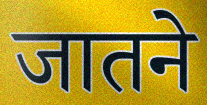
जातने